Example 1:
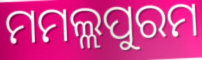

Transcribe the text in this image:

ମମଲ୍ଲପୁରମ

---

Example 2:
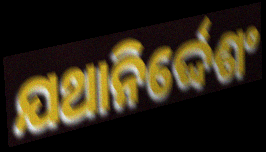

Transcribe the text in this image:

ଯଥାନିର୍ଦ୍ଦେଶଂ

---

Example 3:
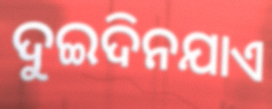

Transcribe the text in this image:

ଦୁଇଦିନଯାଏ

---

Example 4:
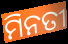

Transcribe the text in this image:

ମିନତୀ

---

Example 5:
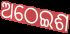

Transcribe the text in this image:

ଅଠେଇଶ